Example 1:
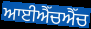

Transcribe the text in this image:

ਆਈਐੱਚਐੱਚ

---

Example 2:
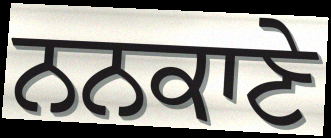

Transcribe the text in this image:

ਨਨਕਾਣੇ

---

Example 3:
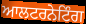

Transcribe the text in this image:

ਆਲਟਰਨੇਟਿੰਗ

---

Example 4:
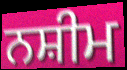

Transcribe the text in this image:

ਨਸ਼ੀਮ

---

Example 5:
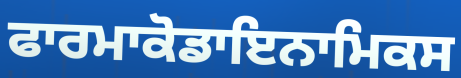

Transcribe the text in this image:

ਫਾਰਮਾਕੋਡਾਇਨਾਮਿਕਸ